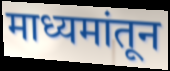
माध्यमांतून